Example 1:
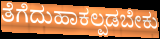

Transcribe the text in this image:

ತೆಗೆದುಹಾಕಲ್ಪಡಬೇಕು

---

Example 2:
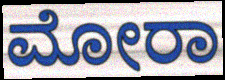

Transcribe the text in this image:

ಮೋರಾ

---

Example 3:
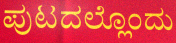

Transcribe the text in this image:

ಪುಟದಲ್ಲೊಂದು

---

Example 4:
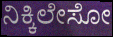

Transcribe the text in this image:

ನಿಕ್ಕಿಲೇಸೋ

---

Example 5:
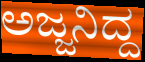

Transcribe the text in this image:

ಅಜ್ಜನಿದ್ದ